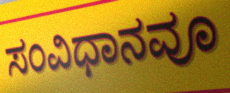
ಸಂವಿಧಾನವೂ